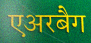
एअरबैग